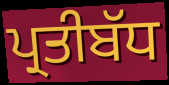
ਪ੍ਰਤੀਬੱਧ